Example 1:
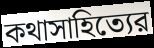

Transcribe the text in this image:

কথাসাহিত্যের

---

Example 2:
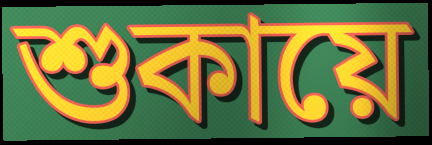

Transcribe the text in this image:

শুকায়ে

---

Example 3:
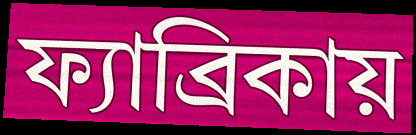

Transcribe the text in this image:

ফ্যাব্রিকায়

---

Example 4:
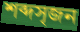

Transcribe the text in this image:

শব্দসৃজন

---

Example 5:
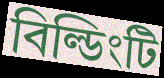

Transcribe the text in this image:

বিল্ডিংটি